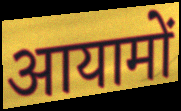
आयामों